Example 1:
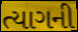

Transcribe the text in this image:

ત્‍યાગની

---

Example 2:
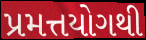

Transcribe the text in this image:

પ્રમત્તયોગથી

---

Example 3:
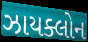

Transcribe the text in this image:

ઝાયક્લોન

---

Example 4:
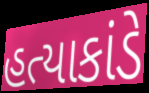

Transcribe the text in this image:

હત્યાકાંડે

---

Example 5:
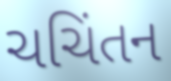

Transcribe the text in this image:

ચચિંતન